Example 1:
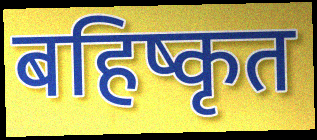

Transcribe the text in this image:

बहिष्कृत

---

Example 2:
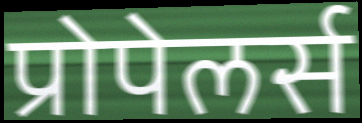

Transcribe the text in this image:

प्रोपेलर्स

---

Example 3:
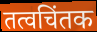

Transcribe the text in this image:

तत्वचिंतक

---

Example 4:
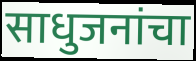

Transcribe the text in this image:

साधुजनांचा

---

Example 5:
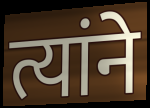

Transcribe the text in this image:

त्यांने